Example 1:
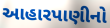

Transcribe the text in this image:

આહારપાણીનો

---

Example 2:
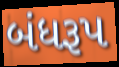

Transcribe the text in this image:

બંધરૂપ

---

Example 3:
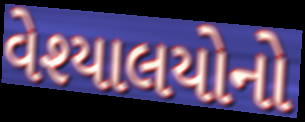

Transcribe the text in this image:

વેશ્યાલયોનો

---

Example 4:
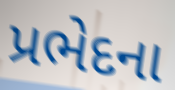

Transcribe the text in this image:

પ્રભેદના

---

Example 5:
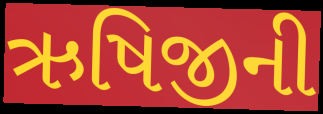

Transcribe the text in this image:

ઋષિજીની